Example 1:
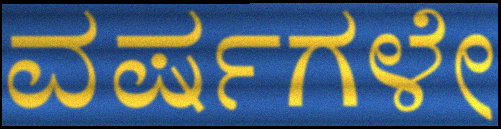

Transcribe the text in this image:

ವರ್ಷಗಳೇ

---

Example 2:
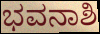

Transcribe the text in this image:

ಭವನಾಶಿ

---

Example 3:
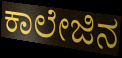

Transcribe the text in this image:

ಕಾಲೇಜಿನ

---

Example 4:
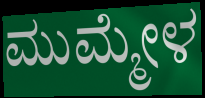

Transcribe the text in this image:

ಮುಮ್ಮೇಳ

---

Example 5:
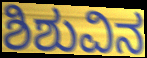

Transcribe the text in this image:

ಶಿಶುವಿನ